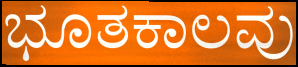
ಭೂತಕಾಲವು